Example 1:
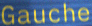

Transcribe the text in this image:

Gauche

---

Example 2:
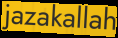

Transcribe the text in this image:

jazakallah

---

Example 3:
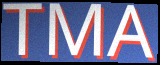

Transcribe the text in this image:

TMA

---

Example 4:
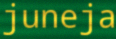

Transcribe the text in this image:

juneja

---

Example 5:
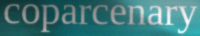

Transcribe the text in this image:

coparcenary